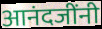
आनंदजींनी